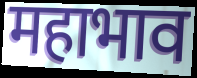
महाभाव